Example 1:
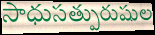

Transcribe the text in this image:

సాధుసత్పురుషుల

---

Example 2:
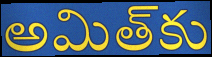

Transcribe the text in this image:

అమిత్‌కు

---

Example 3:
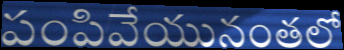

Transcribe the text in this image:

పంపివేయునంతలో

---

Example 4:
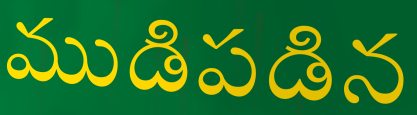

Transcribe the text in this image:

ముడిపడిన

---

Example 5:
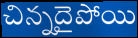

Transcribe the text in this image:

చిన్నదైపోయి